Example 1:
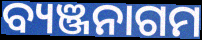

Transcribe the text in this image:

ବ୍ୟଞ୍ଜନାଗମ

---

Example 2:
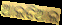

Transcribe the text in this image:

ଆଇଡିଆଲ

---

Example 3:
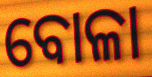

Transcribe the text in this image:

ବୋଳା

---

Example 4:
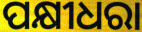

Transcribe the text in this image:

ପକ୍ଷୀଧରା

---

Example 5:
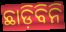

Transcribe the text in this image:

ଛାଡ଼ିବିନି